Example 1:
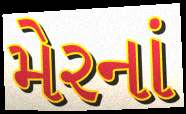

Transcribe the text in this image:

મેરનાં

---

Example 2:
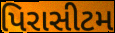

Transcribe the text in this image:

પિરાસીટમ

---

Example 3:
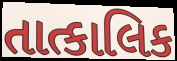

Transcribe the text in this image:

તાત્કાલિક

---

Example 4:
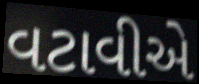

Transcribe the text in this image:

વટાવીએ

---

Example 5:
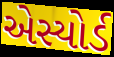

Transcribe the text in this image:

એસ્યોર્ડ